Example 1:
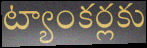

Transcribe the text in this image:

ట్యాంకర్లకు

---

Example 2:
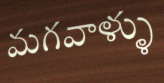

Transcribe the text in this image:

మగవాళ్ళు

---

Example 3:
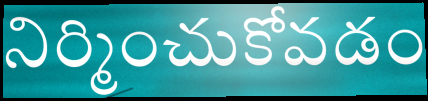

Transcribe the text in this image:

నిర్మించుకోవడం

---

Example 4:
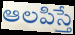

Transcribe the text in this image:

ఆలపిస్తే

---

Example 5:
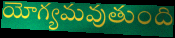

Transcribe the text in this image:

యోగ్యమవుతుంది